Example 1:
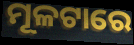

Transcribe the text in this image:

ମୂଳଟାରେ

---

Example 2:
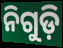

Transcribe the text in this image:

ନିଗୁଡ଼ି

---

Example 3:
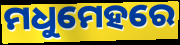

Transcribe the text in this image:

ମଧୁମେହରେ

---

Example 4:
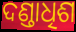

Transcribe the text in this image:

ଦଣ୍ଡାଧିଶ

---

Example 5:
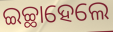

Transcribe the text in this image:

ଇଚ୍ଛାହେଲେ